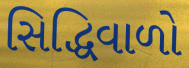
સિદ્ધિવાળો